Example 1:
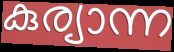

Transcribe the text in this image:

കുര്യാന്ന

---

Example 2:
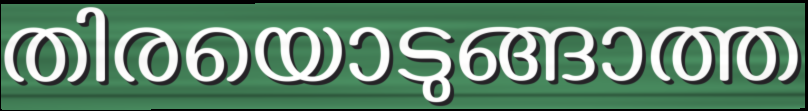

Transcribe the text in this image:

തിരയൊടുങ്ങാത്ത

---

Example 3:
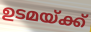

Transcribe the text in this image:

ഉടമയ്ക്ക്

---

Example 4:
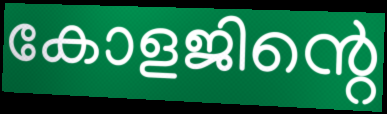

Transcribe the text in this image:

കോളജിന്റെ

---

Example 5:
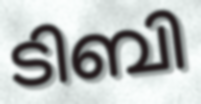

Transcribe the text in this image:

ടിബി